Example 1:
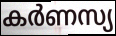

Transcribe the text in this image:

കർണസ്യ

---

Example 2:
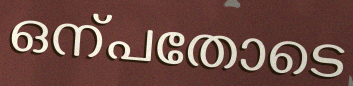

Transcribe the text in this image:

ഒന്പതോടെ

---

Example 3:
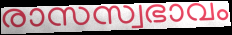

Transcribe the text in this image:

രാസസ്വഭാവം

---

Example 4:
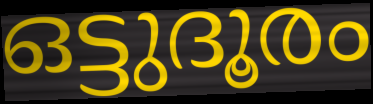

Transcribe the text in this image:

ഒട്ടുദൂരം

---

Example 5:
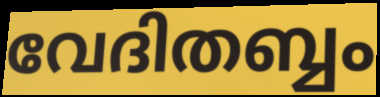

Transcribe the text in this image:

വേദിതബ്ബം